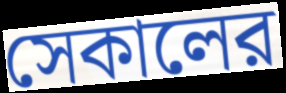
সেকালের